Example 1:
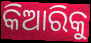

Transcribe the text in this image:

କିଆରିକୁ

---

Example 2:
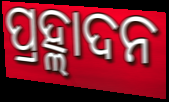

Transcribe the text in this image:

ପ୍ରହ୍ଲାଦନ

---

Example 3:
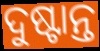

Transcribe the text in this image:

ଦୁଷ୍ଟାନ୍ତ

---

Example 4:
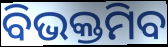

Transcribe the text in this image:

ବିଭକ୍ତମିବ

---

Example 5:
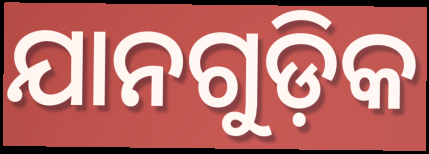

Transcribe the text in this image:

ଯାନଗୁଡ଼ିକ